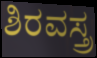
ಶಿರವಸ್ತ್ರ